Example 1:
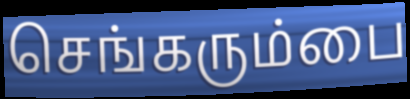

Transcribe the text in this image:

செங்கரும்பை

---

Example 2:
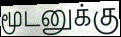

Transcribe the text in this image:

மூடனுக்கு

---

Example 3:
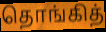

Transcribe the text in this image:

தொங்கித்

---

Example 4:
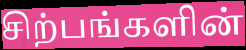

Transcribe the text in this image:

சிற்பங்களின்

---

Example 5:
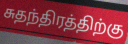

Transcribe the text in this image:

சுதந்திரத்திற்கு